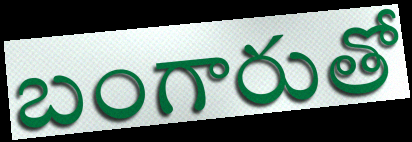
బంగారుతో